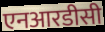
एनआरडीसी